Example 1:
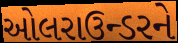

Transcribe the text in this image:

ઓલરાઉન્ડરને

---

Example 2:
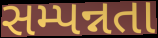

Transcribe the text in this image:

સમ્પન્નતા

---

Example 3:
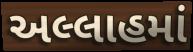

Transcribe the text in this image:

અલ્લાહમાં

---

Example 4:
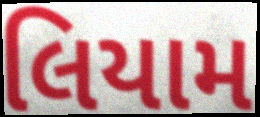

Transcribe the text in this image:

લિયામ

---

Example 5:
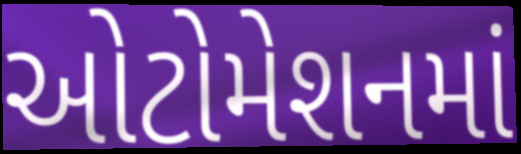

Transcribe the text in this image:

ઓટોમેશનમાં